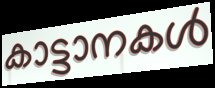
കാട്ടാനകൾ